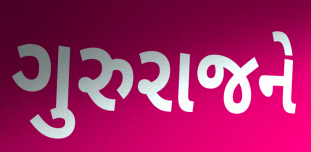
ગુરુરાજને